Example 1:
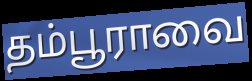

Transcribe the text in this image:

தம்பூராவை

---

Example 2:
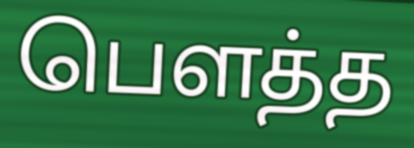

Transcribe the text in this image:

பெளத்த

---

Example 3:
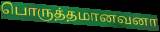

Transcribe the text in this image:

பொருத்தமானவனா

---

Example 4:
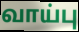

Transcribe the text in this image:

வாய்பு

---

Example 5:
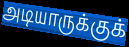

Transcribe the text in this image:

அடியாருக்குக்